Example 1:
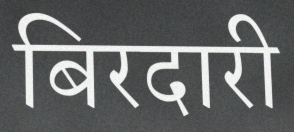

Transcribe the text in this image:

बिरदारी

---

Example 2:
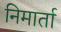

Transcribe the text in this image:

निमार्ता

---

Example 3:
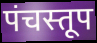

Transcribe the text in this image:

पंचस्तूप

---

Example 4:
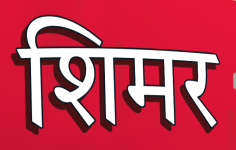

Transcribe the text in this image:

शिमर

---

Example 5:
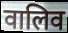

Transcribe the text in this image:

वालिव